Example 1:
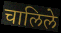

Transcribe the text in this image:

चालिले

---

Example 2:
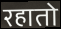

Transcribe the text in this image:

रहातो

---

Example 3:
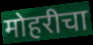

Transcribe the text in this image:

मोहरीचा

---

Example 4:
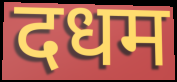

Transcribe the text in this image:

दधम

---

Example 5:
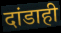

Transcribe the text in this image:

दांडाही